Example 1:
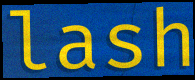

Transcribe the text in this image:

lash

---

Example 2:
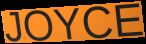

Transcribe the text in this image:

JOYCE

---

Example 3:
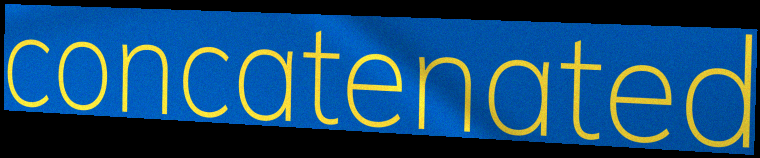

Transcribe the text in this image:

concatenated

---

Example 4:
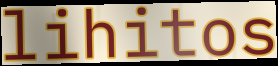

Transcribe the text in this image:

lihitos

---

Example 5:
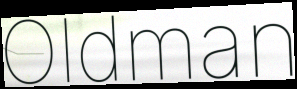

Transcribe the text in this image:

Oldman